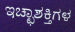
ಇಚ್ಛಾಶಕ್ತಿಗಳ